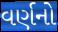
વર્ણનો